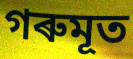
গৰুমূত